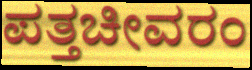
ಪತ್ತಚೀವರಂ